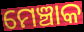
ମେଞ୍ଚାକ